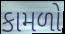
કામળો